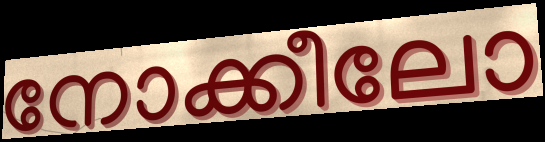
നോക്കീലോ